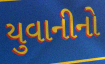
યુવાનીનો